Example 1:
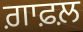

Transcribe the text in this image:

ਗ਼ਾਫ਼ਲ਼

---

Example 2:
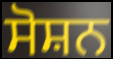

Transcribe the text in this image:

ਸੋਸ਼ਨ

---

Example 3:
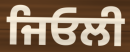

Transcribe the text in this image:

ਜਿਓਲੀ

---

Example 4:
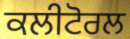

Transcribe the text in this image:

ਕਲੀਟੋਰਲ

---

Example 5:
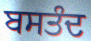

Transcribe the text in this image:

ਬਸਤੰਦ